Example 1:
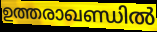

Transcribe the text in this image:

ഉത്തരാഖണ്ഡിൽ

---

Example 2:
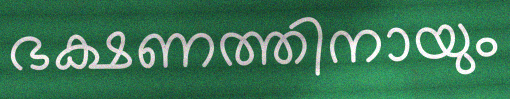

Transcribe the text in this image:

ഭക്ഷണത്തിനായും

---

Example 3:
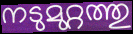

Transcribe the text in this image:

നടുമുറ്റത്തു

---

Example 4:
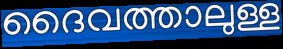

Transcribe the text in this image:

ദൈവത്താലുള്ള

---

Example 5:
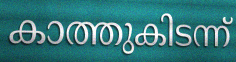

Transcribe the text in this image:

കാത്തുകിടന്ന്